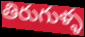
తిరుగుళ్ళ